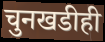
चुनखडीही